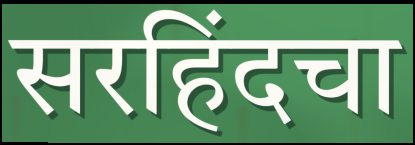
सरहिंदचा